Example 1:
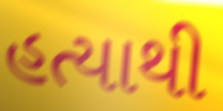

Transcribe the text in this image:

હત્યાથી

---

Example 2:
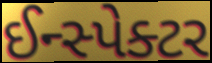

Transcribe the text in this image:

ઈન્સ્પેક્ટર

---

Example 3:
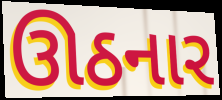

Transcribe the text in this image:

ઊઠનાર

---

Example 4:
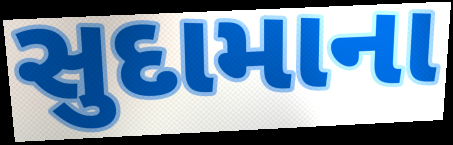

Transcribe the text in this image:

સુદામાના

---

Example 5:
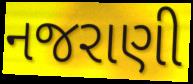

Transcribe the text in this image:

નજરાણી